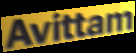
Avittam